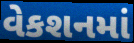
વેકશનમાં